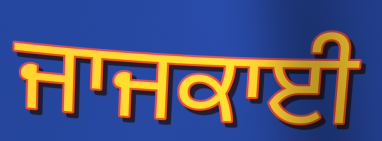
ਜਾਜਕਾਈ